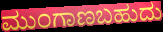
ಮುಂಗಾಣಬಹುದು